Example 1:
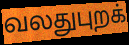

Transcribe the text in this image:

வலதுபுறக்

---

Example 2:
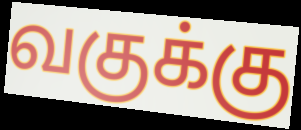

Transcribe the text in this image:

வகுக்கு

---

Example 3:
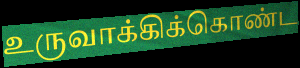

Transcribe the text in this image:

உருவாக்கிக்கொண்ட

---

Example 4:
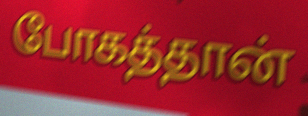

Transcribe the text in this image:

போகத்தான்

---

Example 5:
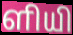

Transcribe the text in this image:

ளியி